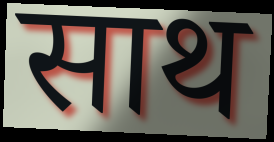
साथ